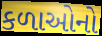
કળાઓનો